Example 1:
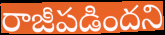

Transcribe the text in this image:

రాజీపడిందని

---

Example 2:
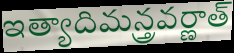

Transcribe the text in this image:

ఇత్యాదిమన్త్రవర్ణాత్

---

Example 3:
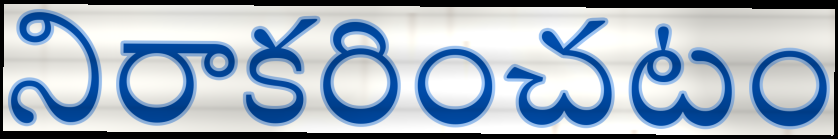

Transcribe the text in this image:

నిరాకరించటం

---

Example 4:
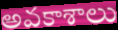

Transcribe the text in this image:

అవకాశాలు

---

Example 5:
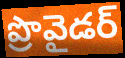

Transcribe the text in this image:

ప్రొవైడర్